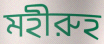
মহীরুহ